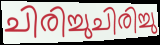
ചിരിച്ചുചിരിച്ചു